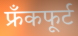
फ्रँकफूर्ट